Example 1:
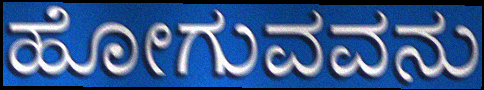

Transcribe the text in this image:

ಹೋಗುವವನು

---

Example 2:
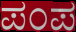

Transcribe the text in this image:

ಪಂಪ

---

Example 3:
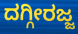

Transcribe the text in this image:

ದಗ್ಗೀರಜ್ಜ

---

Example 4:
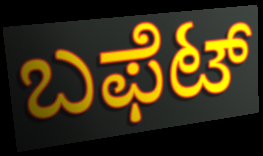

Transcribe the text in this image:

ಬಫೆಟ್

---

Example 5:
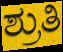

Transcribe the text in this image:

ಶ್ರುತಿ